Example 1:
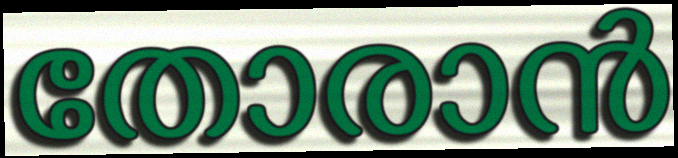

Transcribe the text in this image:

തോരാൻ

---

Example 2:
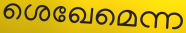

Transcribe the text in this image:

ശെഖേമെന്ന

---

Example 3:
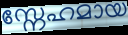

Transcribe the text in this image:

സ്നേഹമായ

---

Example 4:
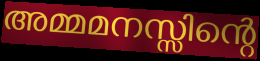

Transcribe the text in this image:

അമ്മമനസ്സിന്റെ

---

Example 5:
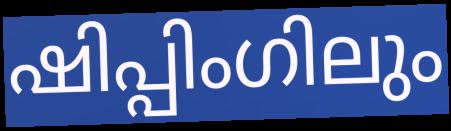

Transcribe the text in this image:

ഷിപ്പിംഗിലും